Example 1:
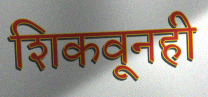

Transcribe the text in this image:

शिकवूनही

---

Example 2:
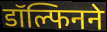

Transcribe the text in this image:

डॉल्फिनने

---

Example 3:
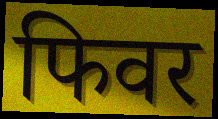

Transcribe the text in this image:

फिवर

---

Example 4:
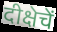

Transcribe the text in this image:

दीक्षेचें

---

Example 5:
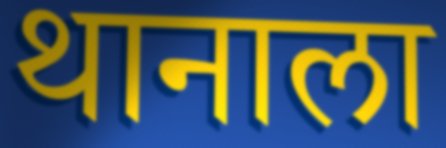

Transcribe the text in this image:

थानाला